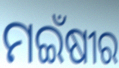
ମଇଁଷୀର